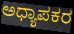
ಅಧ್ಯಾಪಕರ